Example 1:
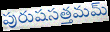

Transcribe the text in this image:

పురుషసత్తమమ్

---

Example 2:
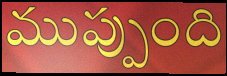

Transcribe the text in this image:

ముప్పుంది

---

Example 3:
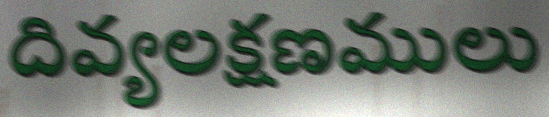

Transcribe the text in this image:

దివ్యలక్షణములు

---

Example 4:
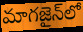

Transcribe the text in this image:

మాగజైన్‌లో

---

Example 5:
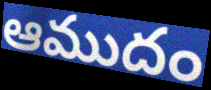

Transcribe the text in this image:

ఆముదం